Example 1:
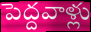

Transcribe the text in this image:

పెద్దవాళ్లు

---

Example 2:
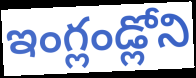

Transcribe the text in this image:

ఇంగ్లండ్లోని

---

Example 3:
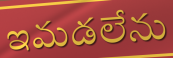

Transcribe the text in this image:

ఇమడలేను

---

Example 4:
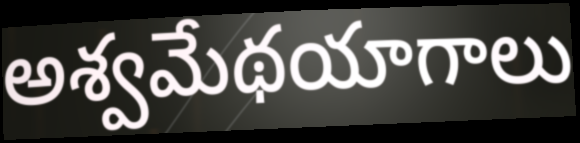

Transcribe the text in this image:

అశ్వమేథయాగాలు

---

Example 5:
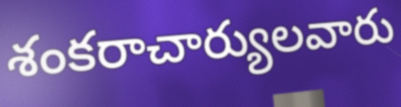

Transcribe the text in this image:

శంకరాచార్యులవారు